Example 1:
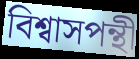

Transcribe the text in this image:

বিশ্বাসপন্থী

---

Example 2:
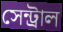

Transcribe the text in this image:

সেন্ট্রাল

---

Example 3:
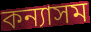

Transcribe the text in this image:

কন্যাসম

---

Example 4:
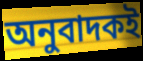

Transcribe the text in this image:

অনুবাদকই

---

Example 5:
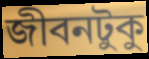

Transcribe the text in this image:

জীবনটুকু